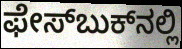
ಫೇಸ್‌ಬುಕ್‌ನಲ್ಲಿ